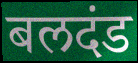
बलदंड